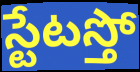
స్టేటస్తో